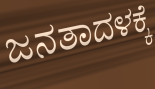
ಜನತಾದಳಕ್ಕೆ